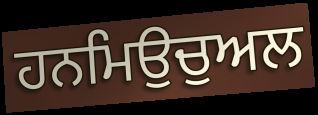
ਹਨਮਿਉਚੁਅਲ